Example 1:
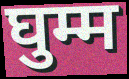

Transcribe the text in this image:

घुम्म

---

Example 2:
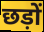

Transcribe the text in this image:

छड़ों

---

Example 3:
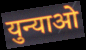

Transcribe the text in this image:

युन्याओ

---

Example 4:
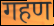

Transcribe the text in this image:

गहण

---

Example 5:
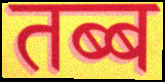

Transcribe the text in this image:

तब्ब